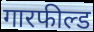
गारफील्ड